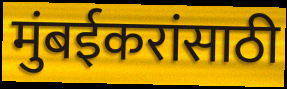
मुंबईकरांसाठी